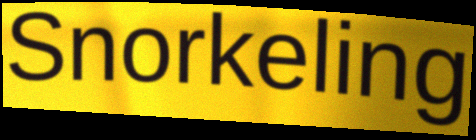
Snorkeling